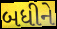
બધીને